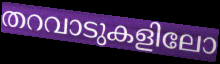
തറവാടുകളിലോ